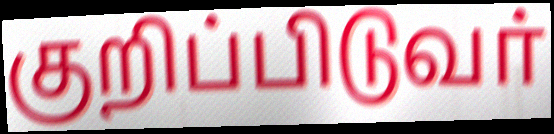
குறிப்பிடுவர்